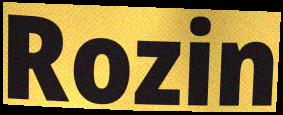
Rozin